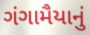
ગંગામૈયાનું